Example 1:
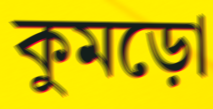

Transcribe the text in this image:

কুমড়ো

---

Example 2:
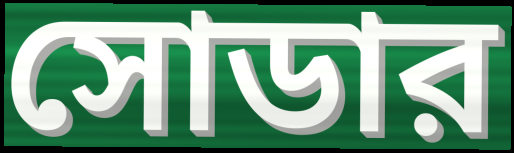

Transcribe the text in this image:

সোডার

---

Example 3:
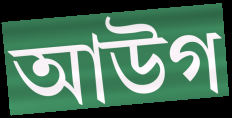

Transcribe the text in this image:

আউগ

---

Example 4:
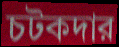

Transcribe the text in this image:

চটকদার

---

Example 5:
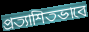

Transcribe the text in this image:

প্রত্যাশিতভাবে